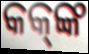
କକ୍‌ଙ୍କ